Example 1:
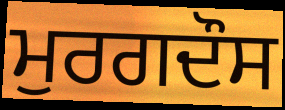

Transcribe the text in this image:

ਮੁਰਗਦੌਸ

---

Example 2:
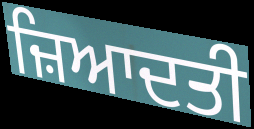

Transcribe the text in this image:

ਜ਼ਿਆਦਤੀ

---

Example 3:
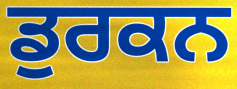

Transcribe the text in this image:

ਡੁਰਕਨ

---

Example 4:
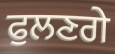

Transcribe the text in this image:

ਫੁਲਣਗੇ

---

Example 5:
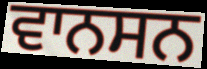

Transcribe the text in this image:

ਵਾਨਸਨ